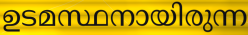
ഉടമസ്ഥനായിരുന്ന